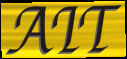
AIT